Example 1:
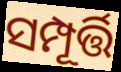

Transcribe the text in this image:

ସମ୍ପୂର୍ତ୍ତି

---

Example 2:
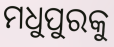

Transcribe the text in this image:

ମଧୁପୁରକୁ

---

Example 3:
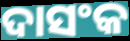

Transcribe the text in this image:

ଦାସଂକ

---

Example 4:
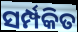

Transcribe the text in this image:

ସର୍ମ୍ପକିତ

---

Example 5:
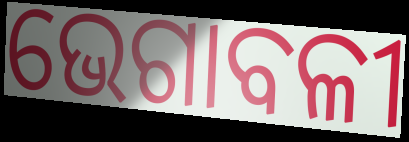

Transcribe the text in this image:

ଭେଗାବଳୀ